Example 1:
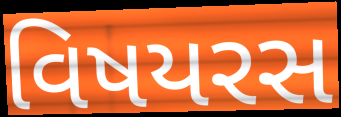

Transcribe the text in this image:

વિષયરસ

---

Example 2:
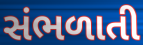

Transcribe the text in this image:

સંભળાતી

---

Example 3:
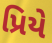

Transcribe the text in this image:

પ્રિયે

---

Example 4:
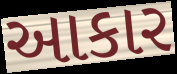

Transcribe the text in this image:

આકાર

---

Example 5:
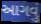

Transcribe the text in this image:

આગવું